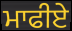
ਮਾਫੀਏ